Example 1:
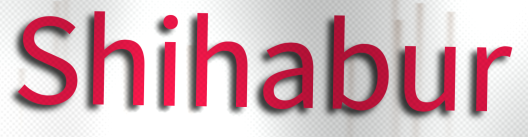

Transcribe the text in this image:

Shihabur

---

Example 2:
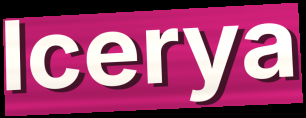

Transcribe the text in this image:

Icerya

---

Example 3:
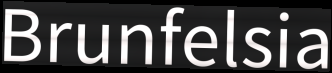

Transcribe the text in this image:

Brunfelsia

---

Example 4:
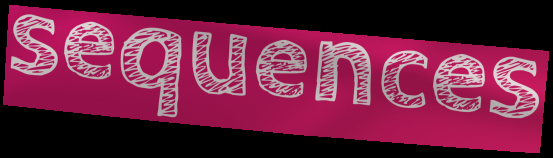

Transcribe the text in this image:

sequences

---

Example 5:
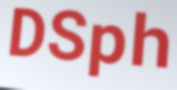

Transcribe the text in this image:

DSph